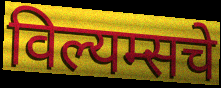
विल्यम्सचे